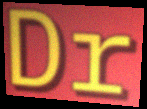
Dr